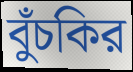
বুঁচকির